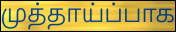
முத்தாய்ப்பாக